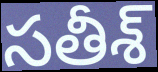
సతీశ్